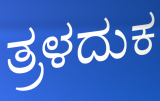
ತ್ರಳದುಕ